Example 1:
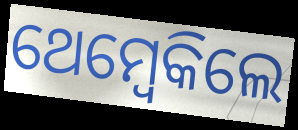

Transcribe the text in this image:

ଥେମ୍ବେକିଲେ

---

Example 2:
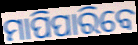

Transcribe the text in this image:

ମାପିପାରିବେ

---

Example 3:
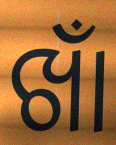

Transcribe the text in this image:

ଖାଁ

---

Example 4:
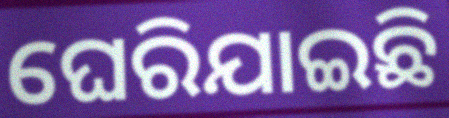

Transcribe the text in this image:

ଘେରିଯାଇଛି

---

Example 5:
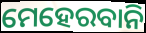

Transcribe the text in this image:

ମେହେରବାନି